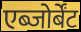
एब्जोर्बेंट